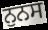
ਨੁਨਸ